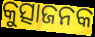
କୁତ୍ସାଜନକ